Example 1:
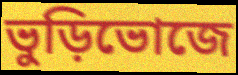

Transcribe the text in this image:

ভুড়িভোজে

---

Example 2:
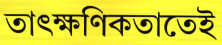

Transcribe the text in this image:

তাৎক্ষণিকতাতেই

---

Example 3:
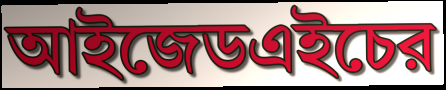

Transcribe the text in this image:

আইজেডএইচের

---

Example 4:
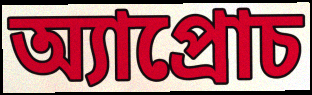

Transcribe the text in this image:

অ্যাপ্রোচ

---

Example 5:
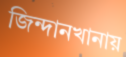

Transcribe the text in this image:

জিন্দানখানায়